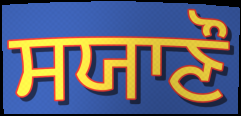
ਸਯਾਣੌ